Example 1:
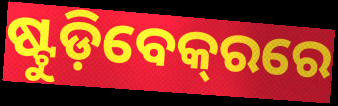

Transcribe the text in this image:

ଷ୍ଟୁଡ଼ିବେକ୍‌ରରେ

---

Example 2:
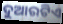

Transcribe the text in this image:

ଦୁଆରଟିଏ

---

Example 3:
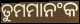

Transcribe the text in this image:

ତୁମମାନଂକ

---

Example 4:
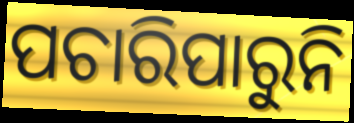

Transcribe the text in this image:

ପଚାରିପାରୁନି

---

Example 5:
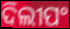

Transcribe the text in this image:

ଦିଲୀପଂ